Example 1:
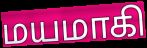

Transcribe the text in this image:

மயமாகி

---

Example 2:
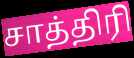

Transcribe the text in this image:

சாத்திரி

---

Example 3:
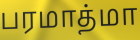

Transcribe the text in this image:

பரமாத்மா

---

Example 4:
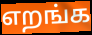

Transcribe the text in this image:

எறங்க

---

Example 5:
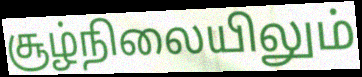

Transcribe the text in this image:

சூழ்நிலையிலும்